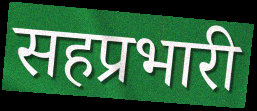
सहप्रभारी